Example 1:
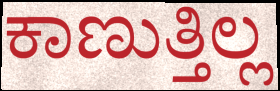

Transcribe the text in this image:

ಕಾಣುತ್ತಿಲ್ಲ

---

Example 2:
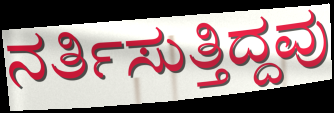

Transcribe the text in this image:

ನರ್ತಿಸುತ್ತಿದ್ದವು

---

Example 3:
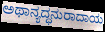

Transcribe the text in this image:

ಅಥಾನ್ಯದ್ಧನುರಾದಾಯ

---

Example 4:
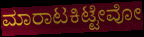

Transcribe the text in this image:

ಮಾರಾಟಕಿಟ್ಟೇವೋ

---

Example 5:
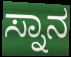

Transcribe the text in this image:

ಸ್ನಾನ